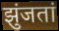
झुंजतां